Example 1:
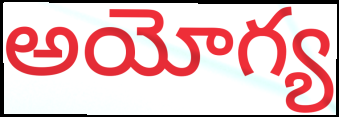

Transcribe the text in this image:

అయోగ్య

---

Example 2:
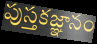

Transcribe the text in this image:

పుస్తకజ్ఞానం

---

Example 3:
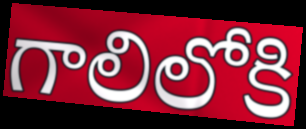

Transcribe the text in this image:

గాలిలోకి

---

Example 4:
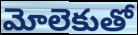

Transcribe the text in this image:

మోలెకుతో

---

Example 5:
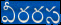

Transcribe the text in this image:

వీరరస